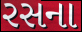
રસના